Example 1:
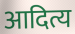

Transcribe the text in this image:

आदित्य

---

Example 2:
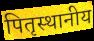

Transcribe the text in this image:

पितृस्थानीय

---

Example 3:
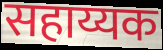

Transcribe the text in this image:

सहाय्यक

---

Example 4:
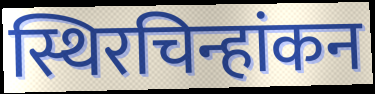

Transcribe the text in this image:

स्थिरचिन्हांकन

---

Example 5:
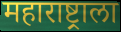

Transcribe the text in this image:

महाराष्ट्राला